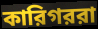
কারিগররা